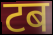
टब